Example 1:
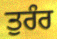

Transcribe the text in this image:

ਤੁਰੰਰ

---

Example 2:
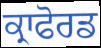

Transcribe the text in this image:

ਕ੍ਰਾਫੋਰਡ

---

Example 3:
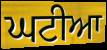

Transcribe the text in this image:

ਘਟੀਆ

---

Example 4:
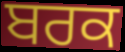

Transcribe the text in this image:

ਬਰਕ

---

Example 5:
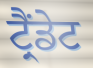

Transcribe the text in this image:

ਟ੍ਰੈਂਡੇਟ